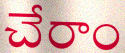
చేరాం